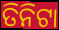
ତିନିଟା